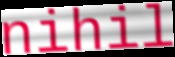
nihil